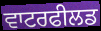
ਵਾਟਰਫੀਲਡ